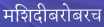
मशिदीबरोबरच